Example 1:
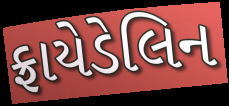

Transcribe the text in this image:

ફ્રાયેડેલિન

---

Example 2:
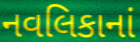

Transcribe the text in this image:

નવલિકાનાં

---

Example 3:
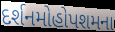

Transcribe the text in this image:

દર્શનમોહોપશમના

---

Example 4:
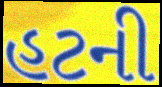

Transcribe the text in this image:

હટની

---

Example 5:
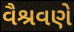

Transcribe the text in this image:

વૈશ્રવણે